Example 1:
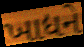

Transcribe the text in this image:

ખાદ્યને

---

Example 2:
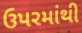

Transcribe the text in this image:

ઉપરમાંથી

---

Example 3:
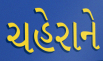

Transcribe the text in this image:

ચહેરાને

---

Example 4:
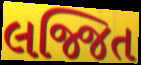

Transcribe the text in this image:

લજ્જિત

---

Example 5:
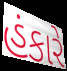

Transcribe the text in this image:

હંકારે